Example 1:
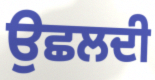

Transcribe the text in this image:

ਉਛਲਦੀ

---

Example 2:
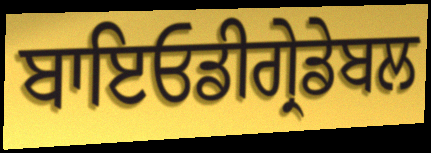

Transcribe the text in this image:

ਬਾਇਓਡੀਗ੍ਰੇਡੇਬਲ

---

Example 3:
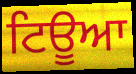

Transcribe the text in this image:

ਟਿਊਆ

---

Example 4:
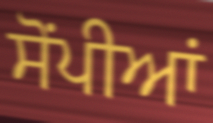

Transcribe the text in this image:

ਸੋਂਪੀਆਂ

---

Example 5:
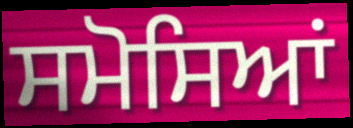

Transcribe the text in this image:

ਸਮੋਸਿਆਂ